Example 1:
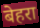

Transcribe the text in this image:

बेहरा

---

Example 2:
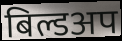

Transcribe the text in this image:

बिल्डअप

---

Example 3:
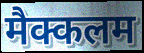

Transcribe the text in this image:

मैक्कलम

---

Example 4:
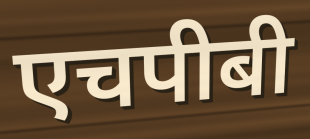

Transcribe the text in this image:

एचपीबी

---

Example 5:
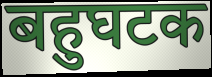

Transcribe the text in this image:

बहुघटक